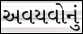
અવયવોનું